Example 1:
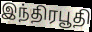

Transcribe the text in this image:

இந்திரபூதி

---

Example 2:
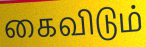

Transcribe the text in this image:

கைவிடும்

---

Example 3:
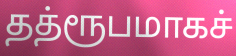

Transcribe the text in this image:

தத்ரூபமாகச்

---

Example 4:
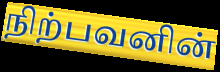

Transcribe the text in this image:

நிற்பவனின்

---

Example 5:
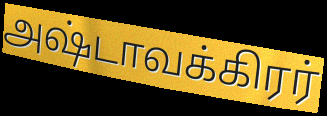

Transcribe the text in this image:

அஷ்டாவக்கிரர்